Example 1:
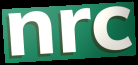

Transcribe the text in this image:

nrc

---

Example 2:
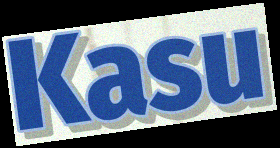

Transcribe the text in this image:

Kasu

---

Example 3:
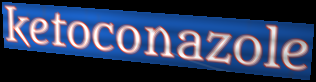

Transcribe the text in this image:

ketoconazole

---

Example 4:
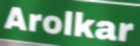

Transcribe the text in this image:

Arolkar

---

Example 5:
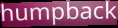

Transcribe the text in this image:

humpback